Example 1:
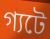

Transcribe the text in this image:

গ্যটে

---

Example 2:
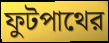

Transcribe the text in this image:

ফুটপাথের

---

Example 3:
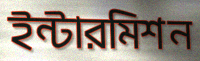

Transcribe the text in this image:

ইন্টারমিশন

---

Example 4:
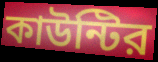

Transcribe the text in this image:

কাউন্টির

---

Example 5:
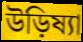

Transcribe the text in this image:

উড়িষ্যা